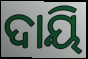
ଦାୟି